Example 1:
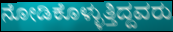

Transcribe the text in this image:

ನೋಡಿಕೊಳ್ಳುತ್ತಿದ್ದವರು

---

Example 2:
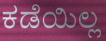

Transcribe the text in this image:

ಕಡೆಯಿಲ್ಲ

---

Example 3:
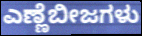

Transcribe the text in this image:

ಎಣ್ಣೆಬೀಜಗಳು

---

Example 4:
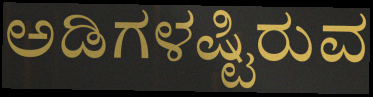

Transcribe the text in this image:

ಅಡಿಗಳಷ್ಟಿರುವ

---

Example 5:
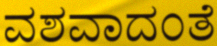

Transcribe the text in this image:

ವಶವಾದಂತೆ